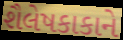
શૈલેષકાકાને